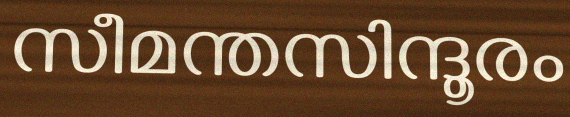
സീമന്തസിന്ദൂരം